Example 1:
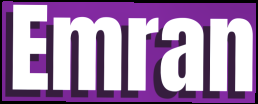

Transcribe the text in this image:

Emran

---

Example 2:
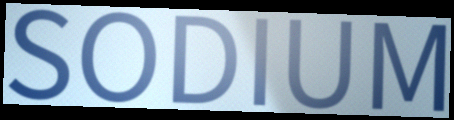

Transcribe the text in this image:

SODIUM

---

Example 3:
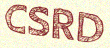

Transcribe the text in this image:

CSRD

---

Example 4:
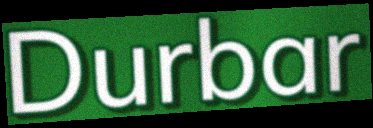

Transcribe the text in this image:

Durbar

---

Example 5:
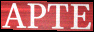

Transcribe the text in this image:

APTE